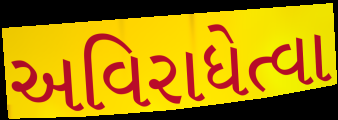
અવિરાધેત્વા